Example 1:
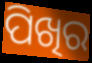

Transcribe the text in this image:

ପିଖିର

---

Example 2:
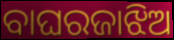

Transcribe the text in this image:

ବାଘରଜାଝିଅ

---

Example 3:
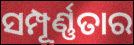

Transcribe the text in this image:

ସମ୍ପୂର୍ଣ୍ଣତାର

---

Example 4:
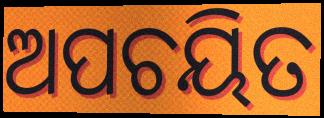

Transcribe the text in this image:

ଅପଚୟିତ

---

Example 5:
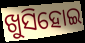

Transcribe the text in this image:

ଖୁସିହୋଇ